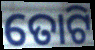
ତୋଟି